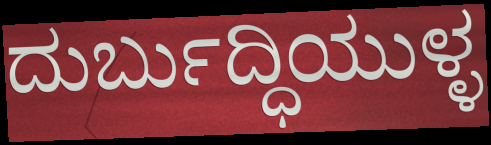
ದುರ್ಬುದ್ಧಿಯುಳ್ಳ